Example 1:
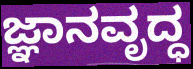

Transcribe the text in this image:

ಜ್ಞಾನವೃದ್ಧ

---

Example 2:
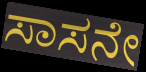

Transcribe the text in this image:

ಸಾಸನೇ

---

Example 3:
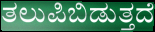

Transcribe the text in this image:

ತಲುಪಿಬಿಡುತ್ತದೆ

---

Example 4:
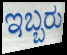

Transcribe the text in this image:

ಇಬ್ಬರು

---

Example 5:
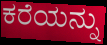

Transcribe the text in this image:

ಕರೆಯನ್ನು